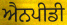
ਐਨਪੀਡੀ